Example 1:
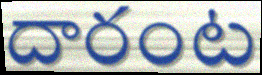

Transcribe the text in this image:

దారంట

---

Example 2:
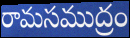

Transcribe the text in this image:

రామసముద్రం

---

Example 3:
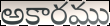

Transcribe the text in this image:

అకారము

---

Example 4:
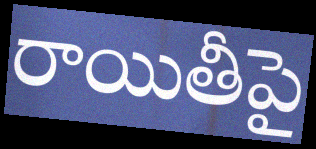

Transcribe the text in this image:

రాయితీపై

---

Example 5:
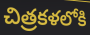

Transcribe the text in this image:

చిత్రకళలోకి